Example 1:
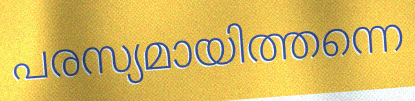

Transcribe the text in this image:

പരസ്യമായിത്തന്നെ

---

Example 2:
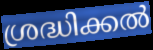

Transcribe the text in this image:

ശ്രദ്ധിക്കൽ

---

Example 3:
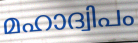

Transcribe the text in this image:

മഹാദ്വിപം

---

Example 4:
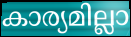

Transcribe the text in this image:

കാര്യമില്ലാ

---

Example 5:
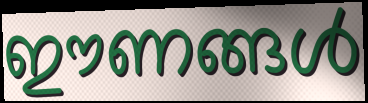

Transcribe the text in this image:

ഈണങ്ങൾ